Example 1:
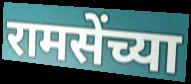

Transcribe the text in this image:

रामसेंच्या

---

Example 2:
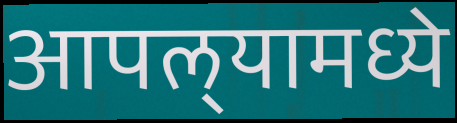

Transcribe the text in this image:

आपल्यामध्ये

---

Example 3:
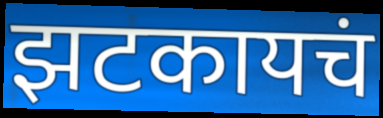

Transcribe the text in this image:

झटकायचं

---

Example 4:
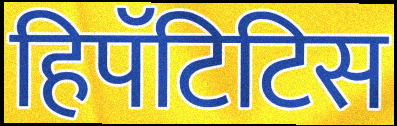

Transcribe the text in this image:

हिपॅटिटिस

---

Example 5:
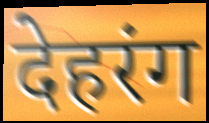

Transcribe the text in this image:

देहरंग